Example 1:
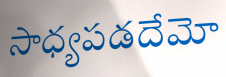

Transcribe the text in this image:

సాధ్యపడదేమో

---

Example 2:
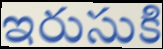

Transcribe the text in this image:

ఇరుసుకి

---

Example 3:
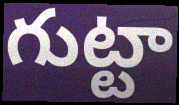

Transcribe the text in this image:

గుట్టా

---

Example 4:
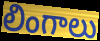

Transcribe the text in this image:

లింగాలు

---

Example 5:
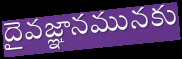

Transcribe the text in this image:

దైవజ్ఞానమునకు